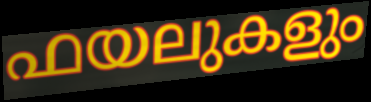
ഫയലുകളും